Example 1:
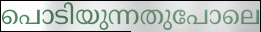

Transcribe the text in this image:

പൊടിയുന്നതുപോലെ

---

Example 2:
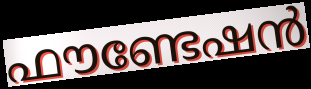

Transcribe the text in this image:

ഫൗണ്ടേഷൻ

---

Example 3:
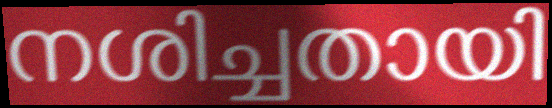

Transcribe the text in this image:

നശിച്ചതായി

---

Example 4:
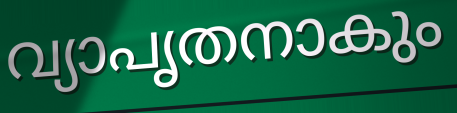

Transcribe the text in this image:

വ്യാപൃതനാകും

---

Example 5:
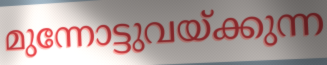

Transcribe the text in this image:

മുന്നോട്ടുവയ്ക്കുന്ന